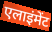
एलाइंमेंट